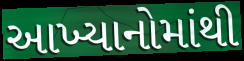
આખ્યાનોમાંથી